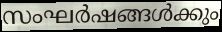
സംഘർഷങ്ങൾക്കും